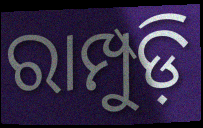
ରାମ୍ପୁଡ଼ି